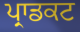
ਪ੍ਰਾਡਕਟ